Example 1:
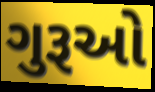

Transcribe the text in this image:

ગુરૂઓ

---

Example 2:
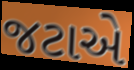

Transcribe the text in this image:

જટાએ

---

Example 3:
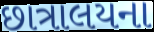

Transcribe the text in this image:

છાત્રાલયના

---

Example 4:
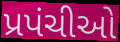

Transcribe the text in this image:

પ્રપંચીઓ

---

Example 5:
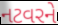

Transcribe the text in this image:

નટવરને